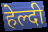
हेल्दी